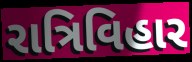
રાત્રિવિહાર